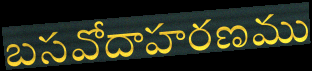
బసవోదాహరణము